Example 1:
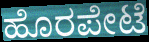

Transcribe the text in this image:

ಹೊರಪೇಟೆ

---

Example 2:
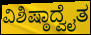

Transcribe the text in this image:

ವಿಶಿಷ್ಠಾದ್ವೈತ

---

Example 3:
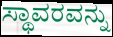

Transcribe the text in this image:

ಸ್ಥಾವರವನ್ನು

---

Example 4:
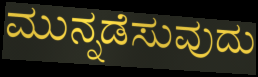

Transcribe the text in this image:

ಮುನ್ನಡೆಸುವುದು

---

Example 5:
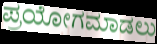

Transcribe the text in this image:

ಪ್ರಯೋಗಮಾಡಲು